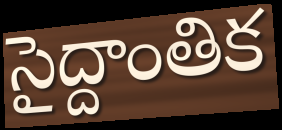
సైద్దాంతిక